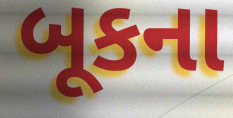
બૂકના